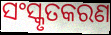
ସଂସ୍କୃତକରଣ